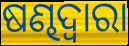
ଷଣ୍ଢଦ୍ୱାରା